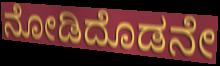
ನೋಡಿದೊಡನೇ